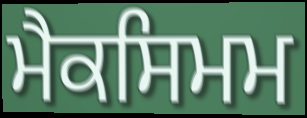
ਮੈਕਸਿਮਮ